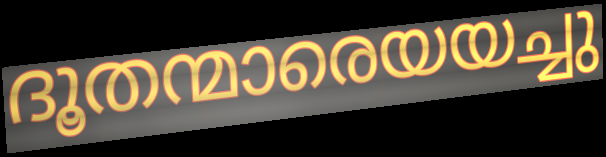
ദൂതന്മാരെയയച്ചു